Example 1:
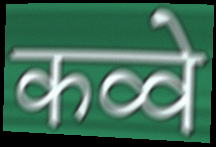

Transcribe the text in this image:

कव्वे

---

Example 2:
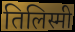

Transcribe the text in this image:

तिलिस्मी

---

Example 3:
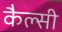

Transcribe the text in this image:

कैल्सी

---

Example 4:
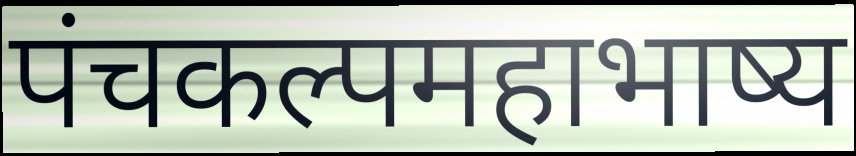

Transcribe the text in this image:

पंचकल्पमहाभाष्य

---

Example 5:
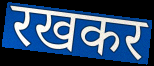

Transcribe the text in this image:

रखकर